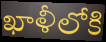
ఖాళీలోకి